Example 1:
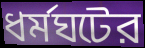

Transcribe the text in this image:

ধর্মঘটের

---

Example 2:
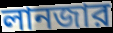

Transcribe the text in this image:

লানজার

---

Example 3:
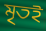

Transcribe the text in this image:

মৃতই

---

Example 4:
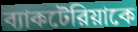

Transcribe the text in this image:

ব্যাকটেরিয়াকে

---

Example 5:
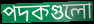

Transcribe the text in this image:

পদকগুলো